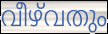
വീഴ്‌വതും